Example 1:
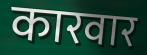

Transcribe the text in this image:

कारवार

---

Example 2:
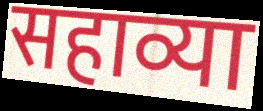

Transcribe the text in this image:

सहाव्या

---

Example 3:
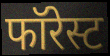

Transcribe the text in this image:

फॉरेस्ट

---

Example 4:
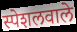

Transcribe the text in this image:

स्पेशलवाले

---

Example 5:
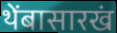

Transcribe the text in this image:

थेंबासारखं